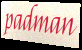
padman